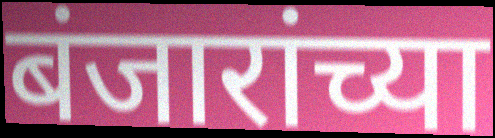
बंजारांच्या